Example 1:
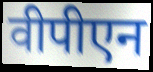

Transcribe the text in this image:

वीपीएन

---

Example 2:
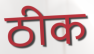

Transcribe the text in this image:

ठीक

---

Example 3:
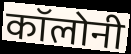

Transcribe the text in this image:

कॉलोनी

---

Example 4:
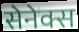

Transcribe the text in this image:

सेनेक्स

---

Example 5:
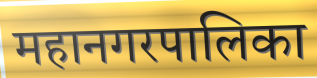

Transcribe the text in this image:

महानगरपालिका